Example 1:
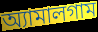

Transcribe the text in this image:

অ্যামালগাম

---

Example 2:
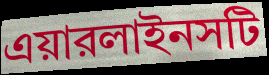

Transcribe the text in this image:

এয়ারলাইনসটি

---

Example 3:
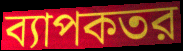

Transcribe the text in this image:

ব্যাপকতর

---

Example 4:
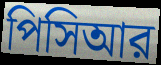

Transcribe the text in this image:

পিসিআর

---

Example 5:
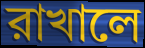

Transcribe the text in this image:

রাখালে